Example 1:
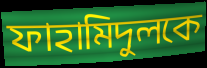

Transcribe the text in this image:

ফাহামিদুলকে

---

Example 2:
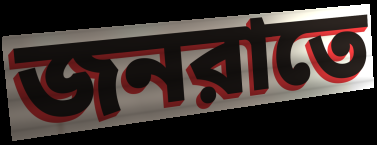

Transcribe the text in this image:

জনরাতে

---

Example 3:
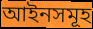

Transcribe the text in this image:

আইনসমূহ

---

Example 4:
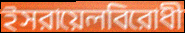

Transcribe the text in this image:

ইসরায়েলবিরোধী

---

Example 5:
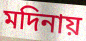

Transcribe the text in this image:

মদিনায়